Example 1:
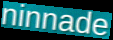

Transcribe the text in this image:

ninnade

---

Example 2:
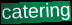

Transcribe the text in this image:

catering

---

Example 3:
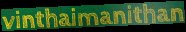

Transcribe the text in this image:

vinthaimanithan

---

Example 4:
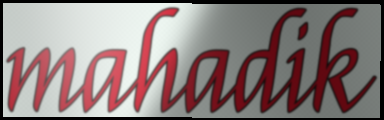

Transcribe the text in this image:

mahadik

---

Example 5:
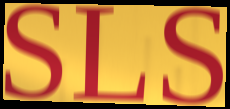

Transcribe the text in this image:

SLS